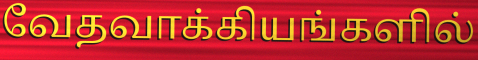
வேதவாக்கியங்களில்